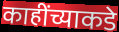
काहींच्याकडे